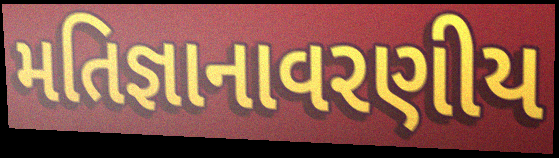
મતિજ્ઞાનાવરણીય